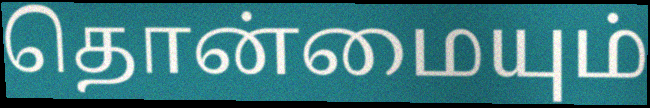
தொன்மையும்